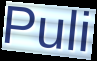
Puli